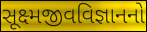
સૂક્ષ્મજીવવિજ્ઞાનનો